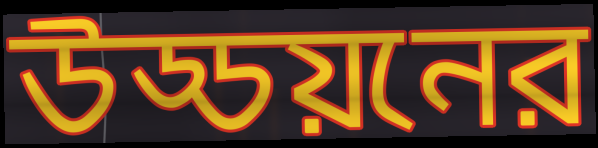
উড্ডয়নের